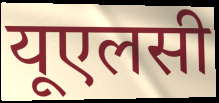
यूएलसी